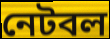
নেটবল